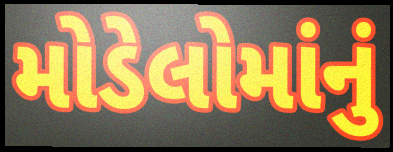
મોડેલોમાંનું